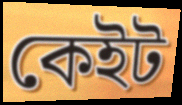
কেইট